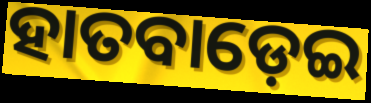
ହାତବାଡ଼େଇ